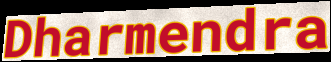
Dharmendra